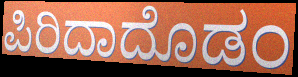
ಪಿರಿದಾದೊಡಂ